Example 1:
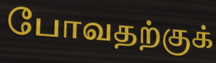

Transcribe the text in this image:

போவதற்குக்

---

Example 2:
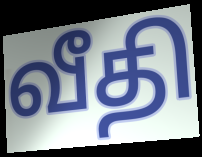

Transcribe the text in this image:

வீதி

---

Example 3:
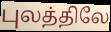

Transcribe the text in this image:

புலத்திலே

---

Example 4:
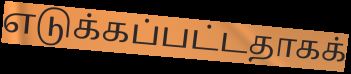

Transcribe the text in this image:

எடுக்கப்பட்டதாகக்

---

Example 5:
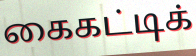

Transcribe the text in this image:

கைகட்டிக்